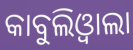
କାବୁଲିଓ୍ୱାଲା